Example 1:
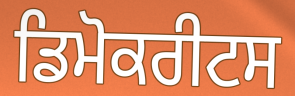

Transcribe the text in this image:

ਡਿਮੋਕਰੀਟਸ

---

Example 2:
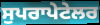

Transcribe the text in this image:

ਸੁਪਰਾਪੇਟੇਲਰ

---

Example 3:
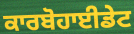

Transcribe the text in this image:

ਕਾਰਬੋਹਾਈਡੇਟ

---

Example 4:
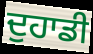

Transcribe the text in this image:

ਦੁਹਾਡੀ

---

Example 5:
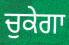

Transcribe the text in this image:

ਚੁਕੇਗਾ